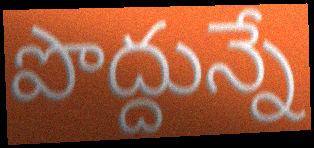
పొద్దున్నే